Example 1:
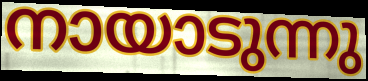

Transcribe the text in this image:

നായാടുന്നു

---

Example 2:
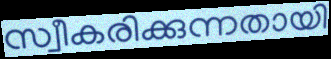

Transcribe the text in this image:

സ്വീകരിക്കുന്നതായി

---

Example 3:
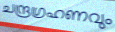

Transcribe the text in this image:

ചന്ദ്രഗ്രഹണവും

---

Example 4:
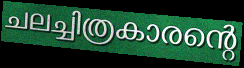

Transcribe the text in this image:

ചലച്ചിത്രകാരന്റെ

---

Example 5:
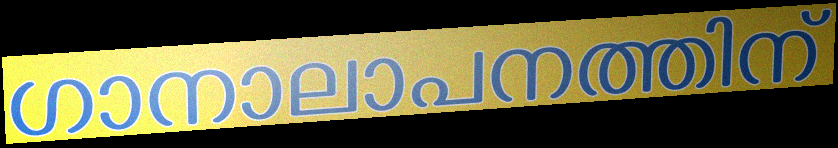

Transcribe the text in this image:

ഗാനാലാപനത്തിന്